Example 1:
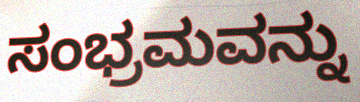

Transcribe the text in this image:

ಸಂಭ್ರಮವನ್ನು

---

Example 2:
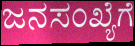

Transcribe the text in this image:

ಜನಸಂಖ್ಯೆಗೆ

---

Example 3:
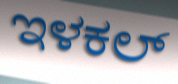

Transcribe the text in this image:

ಇಳಕಲ್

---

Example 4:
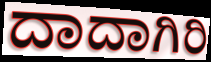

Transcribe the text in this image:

ದಾದಾಗಿರಿ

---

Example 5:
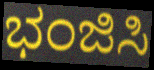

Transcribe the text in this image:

ಭಂಜಿಸಿ